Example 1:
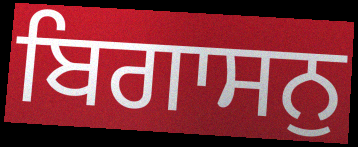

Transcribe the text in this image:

ਬਿਗਾਸਨੁ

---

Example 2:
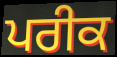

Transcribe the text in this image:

ਪਰੀਕ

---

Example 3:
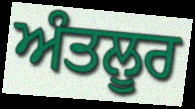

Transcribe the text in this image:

ਅੰਤਲੂਰ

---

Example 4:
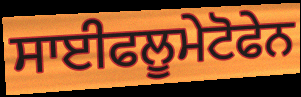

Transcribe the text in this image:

ਸਾਈਫਲੂਮੇਟੋਫੇਨ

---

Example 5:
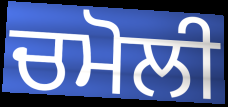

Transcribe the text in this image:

ਚਮੋਲੀ